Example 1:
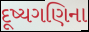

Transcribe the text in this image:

દૂષ્યગણિના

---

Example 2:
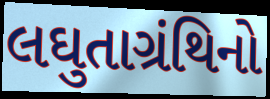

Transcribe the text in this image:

લઘુતાગ્રંથિનો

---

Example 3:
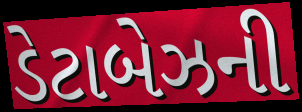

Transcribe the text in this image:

ડેટાબેઝની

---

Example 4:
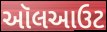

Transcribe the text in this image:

ઑલઆઉટ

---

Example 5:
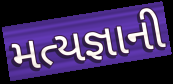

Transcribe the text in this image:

મત્યજ્ઞાની